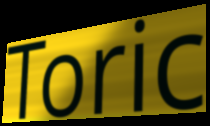
Toric